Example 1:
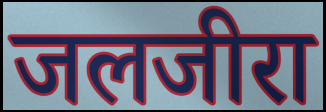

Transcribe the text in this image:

जलजीरा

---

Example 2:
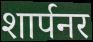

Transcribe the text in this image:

शार्पनर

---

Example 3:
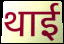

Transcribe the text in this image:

थाई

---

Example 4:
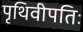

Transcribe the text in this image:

पृथिवीपतिः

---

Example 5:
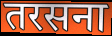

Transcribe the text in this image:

तरसना